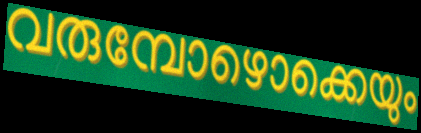
വരുമ്പോഴൊക്കെയും